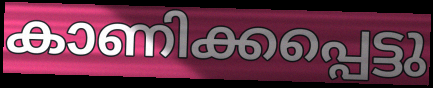
കാണിക്കപ്പെട്ടു